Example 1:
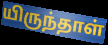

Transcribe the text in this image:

யிருந்தாள்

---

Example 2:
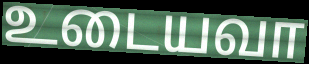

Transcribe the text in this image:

உடையவா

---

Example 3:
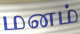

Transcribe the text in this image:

மனம்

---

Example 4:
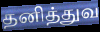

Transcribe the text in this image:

தனித்துவ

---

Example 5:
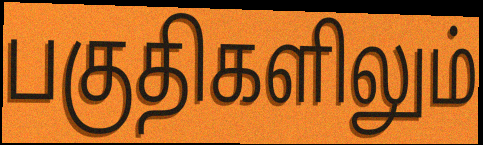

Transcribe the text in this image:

பகுதிகளிலும்